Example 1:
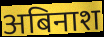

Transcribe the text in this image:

अबिनाश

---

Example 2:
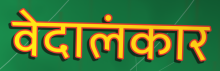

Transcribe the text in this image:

वेदालंकार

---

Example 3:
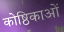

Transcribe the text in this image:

कोष्ठिकाओं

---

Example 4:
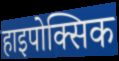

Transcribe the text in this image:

हाइपोक्सिक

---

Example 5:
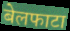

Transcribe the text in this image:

बेलफाटा